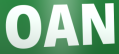
OAN